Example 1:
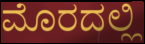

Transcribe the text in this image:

ಮೊರದಲ್ಲಿ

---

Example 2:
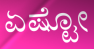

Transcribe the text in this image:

ಏಷ್ಟೋ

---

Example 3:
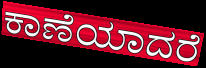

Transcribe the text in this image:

ಕಾಣೆಯಾದರೆ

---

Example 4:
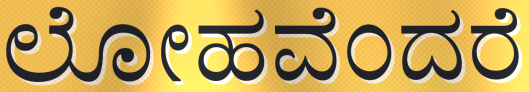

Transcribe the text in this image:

ಲೋಹವೆಂದರೆ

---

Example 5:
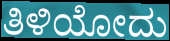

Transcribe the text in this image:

ತಿಳಿಯೋದು